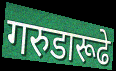
गरुडारूढे